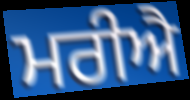
ਮਰੀਐ